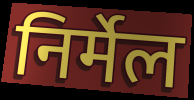
निर्मेल